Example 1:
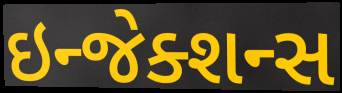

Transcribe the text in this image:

ઇન્જેક્શન્સ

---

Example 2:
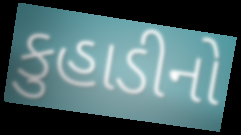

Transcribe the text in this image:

કુહાડીનો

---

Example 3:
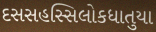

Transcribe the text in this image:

દસસહસ્સિલોકધાતુયા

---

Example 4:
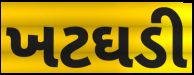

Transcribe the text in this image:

ખટઘડી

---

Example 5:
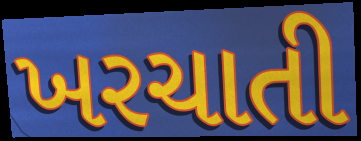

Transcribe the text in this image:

ખરચાતી